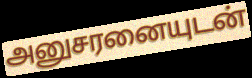
அனுசரனையுடன்